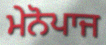
ਮੇਨੋਪਾਜ